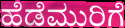
ಹೆಡೆಮುರಿಗೆ